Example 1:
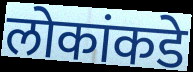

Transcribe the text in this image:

लोकांकडे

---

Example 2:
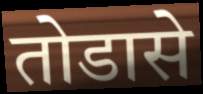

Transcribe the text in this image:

तोडासे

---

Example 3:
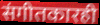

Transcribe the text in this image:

संगीतकारही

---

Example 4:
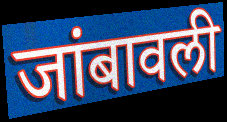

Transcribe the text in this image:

जांबावली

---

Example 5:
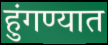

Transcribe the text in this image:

हुंगण्यात